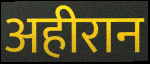
अहीरान